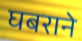
घबराने